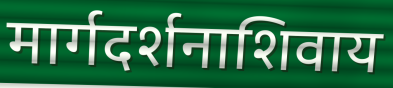
मार्गदर्शनाशिवाय